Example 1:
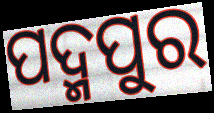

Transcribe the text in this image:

ପଦ୍ମପୁର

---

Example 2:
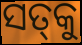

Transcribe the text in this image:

ସତ୍‌କୁ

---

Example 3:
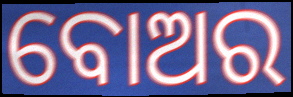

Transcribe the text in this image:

ବୋଅର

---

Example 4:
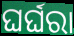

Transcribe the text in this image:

ଘର୍ଘରା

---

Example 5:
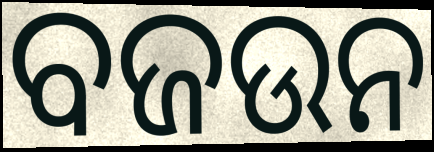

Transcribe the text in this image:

ବଜଉନ